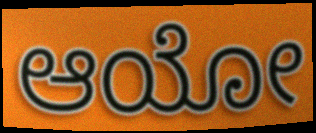
ಆಯೋ